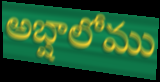
అబ్షాలోము